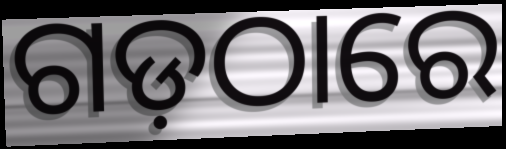
ଗଡ଼ଠାରେ